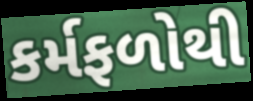
કર્મફળોથી